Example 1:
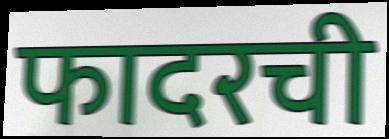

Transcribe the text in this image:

फादरची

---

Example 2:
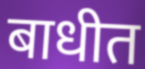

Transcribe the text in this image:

बाधीत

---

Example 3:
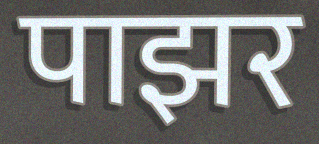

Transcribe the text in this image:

पाझर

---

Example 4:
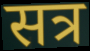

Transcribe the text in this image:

सत्र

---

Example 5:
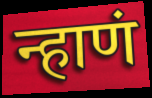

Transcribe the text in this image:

न्हाणं